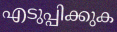
എടുപ്പിക്കുക